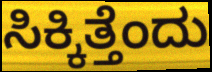
ಸಿಕ್ಕಿತ್ತೆಂದು